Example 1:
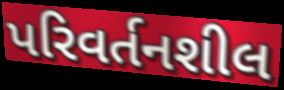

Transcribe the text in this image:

પરિવર્તનશીલ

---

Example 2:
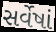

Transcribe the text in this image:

સર્વેષાં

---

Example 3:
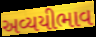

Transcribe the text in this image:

અવ્યયીભાવ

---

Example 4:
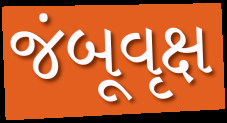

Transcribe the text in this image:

જંબૂવૃક્ષ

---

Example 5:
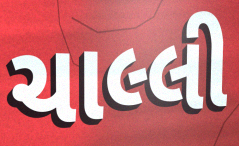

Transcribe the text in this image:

ચાલ્લી